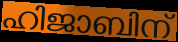
ഹിജാബിന്